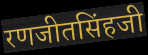
रणजीतसिंहजी